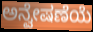
ಅನ್ವೇಷಣೆಯೆ